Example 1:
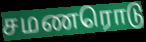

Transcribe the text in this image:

சமணரொடு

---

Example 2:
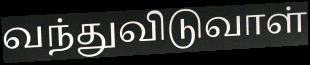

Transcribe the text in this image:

வந்துவிடுவாள்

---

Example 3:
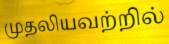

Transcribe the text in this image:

முதலியவற்றில்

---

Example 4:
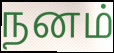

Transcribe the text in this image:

நனம்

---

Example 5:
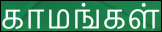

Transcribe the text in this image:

காமங்கள்